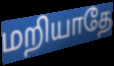
மறியாதே